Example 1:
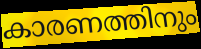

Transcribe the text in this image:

കാരണത്തിനും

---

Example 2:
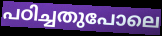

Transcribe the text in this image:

പഠിച്ചതുപോലെ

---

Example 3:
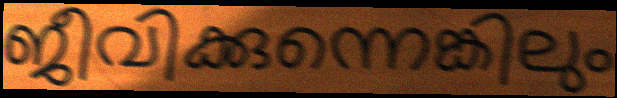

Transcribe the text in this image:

ജീവിക്കുന്നെങ്കിലും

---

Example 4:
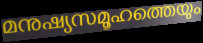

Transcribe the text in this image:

മനുഷ്യസമൂഹത്തെയും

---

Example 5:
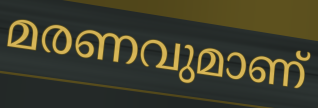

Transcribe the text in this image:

മരണവുമാണ്